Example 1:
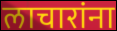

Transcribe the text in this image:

लाचारांना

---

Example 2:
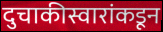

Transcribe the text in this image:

दुचाकीस्वारांकडून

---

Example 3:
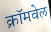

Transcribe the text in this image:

क्रॉमवेल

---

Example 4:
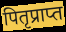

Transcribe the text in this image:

पितृप्राप्त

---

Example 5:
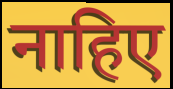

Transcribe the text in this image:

नाहिए